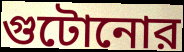
গুটোনোর